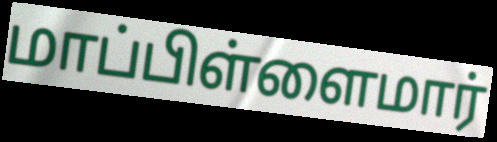
மாப்பிள்ளைமார்